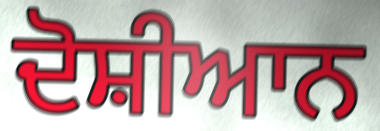
ਦੋਸ਼ੀਆਨ